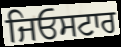
ਜਿਓਸਟਾਰ